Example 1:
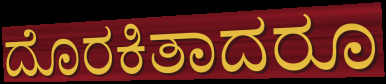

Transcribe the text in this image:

ದೊರಕಿತಾದರೂ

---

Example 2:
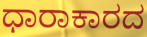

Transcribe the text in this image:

ಧಾರಾಕಾರದ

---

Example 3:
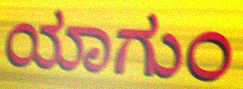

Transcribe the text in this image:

ಯಾಗುಂ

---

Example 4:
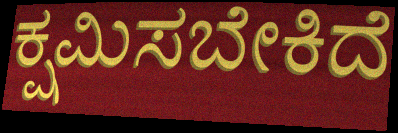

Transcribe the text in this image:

ಕ್ಷಮಿಸಬೇಕಿದೆ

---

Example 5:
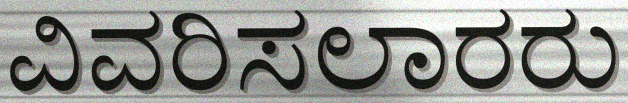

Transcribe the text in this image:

ವಿವರಿಸಲಾರರು